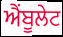
ਐਂਬੂਲੇਟ